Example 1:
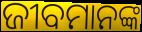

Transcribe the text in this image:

ଜୀବମାନଙ୍କ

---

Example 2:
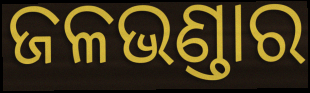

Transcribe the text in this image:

ଜଳଭଣ୍ଡାର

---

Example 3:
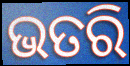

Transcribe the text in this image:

ଭତରି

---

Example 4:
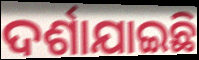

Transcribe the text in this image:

ଦର୍ଶାଯାଇଛି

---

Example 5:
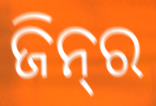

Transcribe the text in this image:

ଜିନ୍‍ର